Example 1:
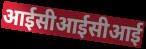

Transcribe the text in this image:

आईसीआईसीआई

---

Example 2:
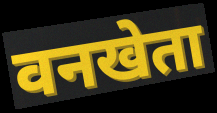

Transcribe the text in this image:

वनखेता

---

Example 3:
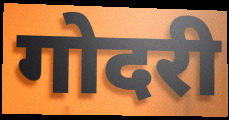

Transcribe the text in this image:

गोदरी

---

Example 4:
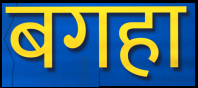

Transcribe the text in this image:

बगहा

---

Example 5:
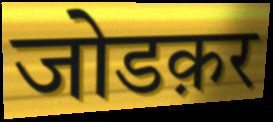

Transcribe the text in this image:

जोडक़र